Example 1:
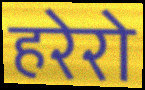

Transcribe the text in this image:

हरेरो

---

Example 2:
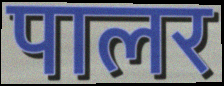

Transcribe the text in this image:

पालर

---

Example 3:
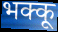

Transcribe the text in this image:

भक्कू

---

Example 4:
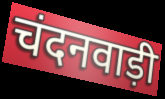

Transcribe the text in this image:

चंदनवाड़ी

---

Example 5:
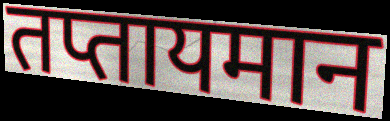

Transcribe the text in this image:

तप्तायमान